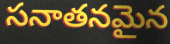
సనాతనమైన